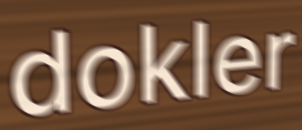
dokler